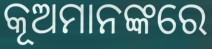
କୂଅମାନଙ୍କରେ